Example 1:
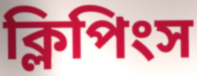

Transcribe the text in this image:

ক্লিপিংস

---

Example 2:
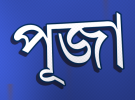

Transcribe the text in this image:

পূজা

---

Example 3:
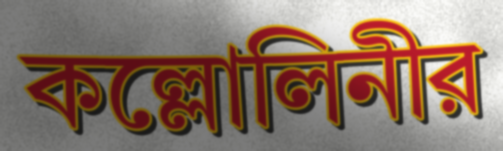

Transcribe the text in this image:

কল্লোলিনীর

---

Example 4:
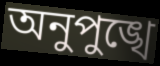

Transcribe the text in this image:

অনুপুঙ্খে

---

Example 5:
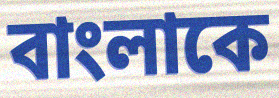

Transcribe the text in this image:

বাংলাকে